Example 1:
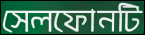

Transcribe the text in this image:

সেলফোনটি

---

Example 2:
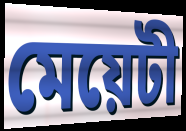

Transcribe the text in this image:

মেয়েটী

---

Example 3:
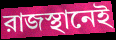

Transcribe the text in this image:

রাজস্থানেই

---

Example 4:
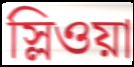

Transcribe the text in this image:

স্লিওয়া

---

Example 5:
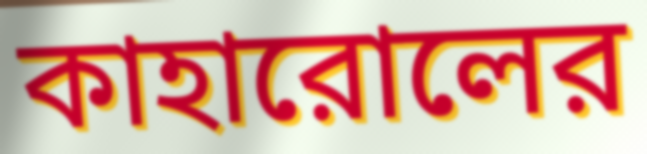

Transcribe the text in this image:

কাহারোলের